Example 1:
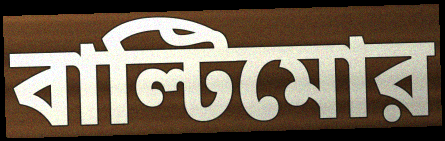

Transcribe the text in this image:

বাল্টিমোর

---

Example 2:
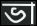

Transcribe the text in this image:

ভা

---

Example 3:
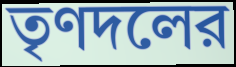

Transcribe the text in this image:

তৃণদলের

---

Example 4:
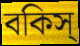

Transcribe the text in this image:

বকিস্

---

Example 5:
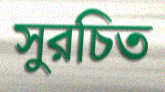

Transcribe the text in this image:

সুরচিত